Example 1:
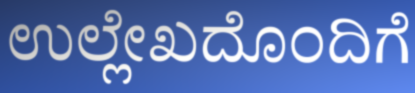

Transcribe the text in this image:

ಉಲ್ಲೇಖದೊಂದಿಗೆ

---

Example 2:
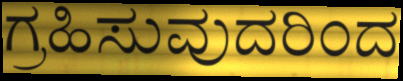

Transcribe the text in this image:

ಗ್ರಹಿಸುವುದರಿಂದ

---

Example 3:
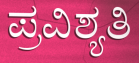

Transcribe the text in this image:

ಪ್ರವಿಶ್ಯತಿ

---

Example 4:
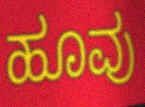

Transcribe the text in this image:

ಹೂವು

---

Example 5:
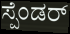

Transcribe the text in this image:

ಸ್ಪೆಂಡರ್